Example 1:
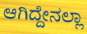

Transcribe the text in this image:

ಆಗಿದ್ದೇನಲ್ಲಾ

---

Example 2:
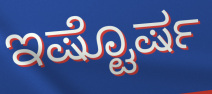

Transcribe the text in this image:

ಇಷ್ಟೊರ್ಷ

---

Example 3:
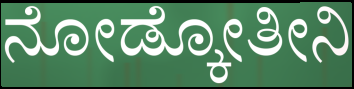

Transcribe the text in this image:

ನೋಡ್ಕೋತೀನಿ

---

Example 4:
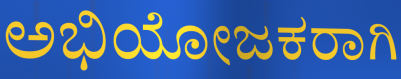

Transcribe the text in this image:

ಅಭಿಯೋಜಕರಾಗಿ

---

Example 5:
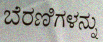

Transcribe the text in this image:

ಬೆರಣಿಗಳನ್ನು